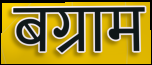
बग्राम